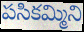
పసికమ్మిని